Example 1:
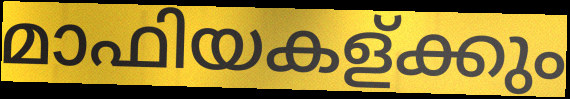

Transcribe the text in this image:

മാഫിയകള്ക്കും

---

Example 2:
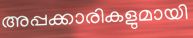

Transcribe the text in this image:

അപ്പക്കാരികളുമായി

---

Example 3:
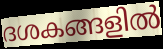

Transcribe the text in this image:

ദശകങ്ങളിൽ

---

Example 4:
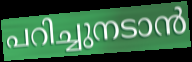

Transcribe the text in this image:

പറിച്ചുനടാൻ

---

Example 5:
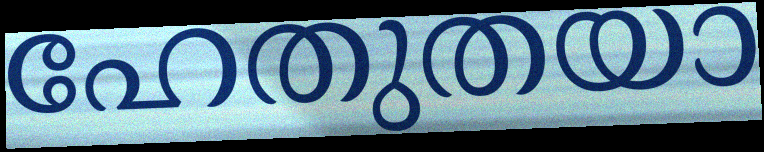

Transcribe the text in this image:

ഹേതുതയാ